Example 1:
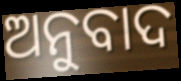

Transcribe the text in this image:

ଅନୁବାଦ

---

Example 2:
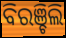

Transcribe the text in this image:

ବିରଞ୍ଚିଲି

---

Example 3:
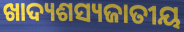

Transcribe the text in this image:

ଖାଦ୍ୟଶସ୍ୟଜାତୀୟ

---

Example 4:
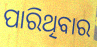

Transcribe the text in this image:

ପାରିଥିବାର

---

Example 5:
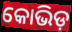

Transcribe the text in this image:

କୋଭିଡ଼